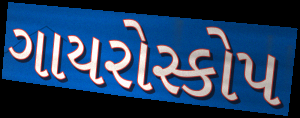
ગાયરોસ્કોપ